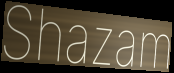
Shazam